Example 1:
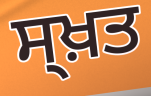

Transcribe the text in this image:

ਸ੍ਖ਼ਤ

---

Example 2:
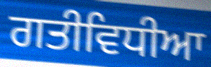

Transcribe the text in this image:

ਗਤੀਵਿਧੀਆ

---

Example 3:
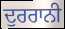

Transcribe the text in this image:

ਦੁਰਰਾਨੀ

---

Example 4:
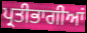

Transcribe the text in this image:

ਪ੍ਰਤੀਭਾਗੀਆਂ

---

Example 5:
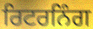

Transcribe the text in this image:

ਰਿਟਰਨਿੰਗ